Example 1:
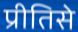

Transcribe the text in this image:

प्रीतिसे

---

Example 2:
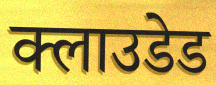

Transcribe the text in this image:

क्लाउडेड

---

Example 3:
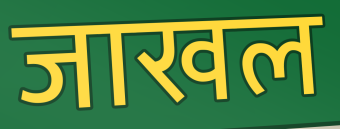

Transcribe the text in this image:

जाखल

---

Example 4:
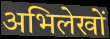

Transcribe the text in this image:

अभिलेखों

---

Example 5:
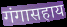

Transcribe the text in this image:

गंगासहाय